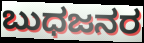
ಬುಧಜನರ